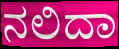
ನಲಿದಾ